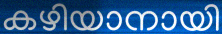
കഴിയാനായി